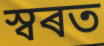
স্বৰত